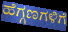
ಹೆಗ್ಗಣಗಳಿಗೆ